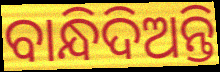
ବାନ୍ଧିଦିଅନ୍ତି